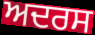
ਅਦਰਸ